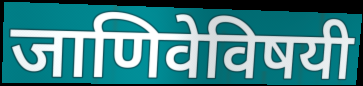
जाणिवेविषयी